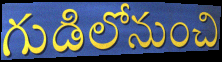
గుడిలోనుంచి